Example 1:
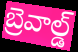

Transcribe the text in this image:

బ్రెవాల్డ్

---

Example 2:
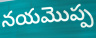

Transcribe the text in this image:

నయమొప్ప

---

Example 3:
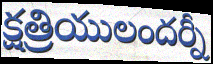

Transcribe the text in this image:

క్షత్రియులందర్నీ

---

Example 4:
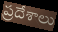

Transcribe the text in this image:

ప్రదేశాలు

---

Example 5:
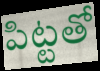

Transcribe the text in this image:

పిట్టతో